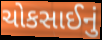
ચોકસાઈનું